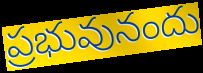
ప్రభువునందు